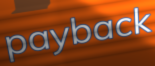
payback